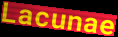
Lacunae